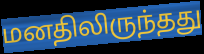
மனதிலிருந்தது